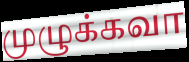
முழுக்கவா